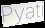
Pyati